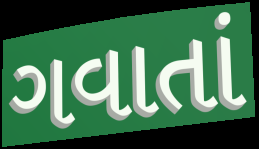
ગવાતાં